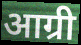
आग्री